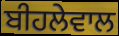
ਬੀਹਲੇਵਾਲ